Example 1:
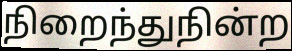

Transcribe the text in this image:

நிறைந்துநின்ற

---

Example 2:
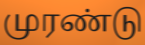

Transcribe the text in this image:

முரண்டு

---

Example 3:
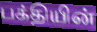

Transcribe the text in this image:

பக்தியின்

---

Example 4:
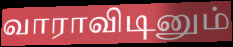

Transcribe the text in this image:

வாராவிடினும்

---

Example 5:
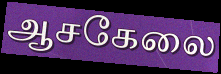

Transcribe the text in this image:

ஆசகேலை